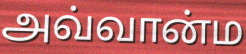
அவ்வான்ம